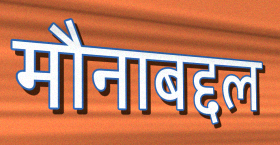
मौनाबद्दल